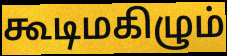
கூடிமகிழும்